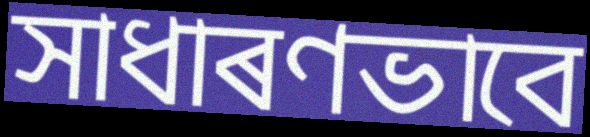
সাধাৰণভাবে